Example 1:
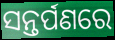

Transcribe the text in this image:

ସନ୍ତର୍ପଣରେ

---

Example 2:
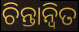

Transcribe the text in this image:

ଚିନ୍ତାନ୍ୱିତ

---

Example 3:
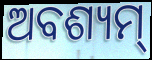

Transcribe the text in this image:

ଅବଶ୍ୟମ୍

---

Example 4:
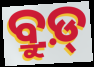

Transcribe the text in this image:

ବ୍ରୁଡ଼୍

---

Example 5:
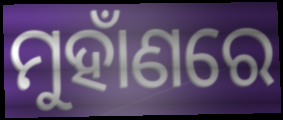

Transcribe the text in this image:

ମୁହାଁଣରେ